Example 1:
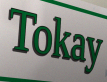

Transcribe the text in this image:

Tokay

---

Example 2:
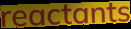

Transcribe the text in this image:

reactants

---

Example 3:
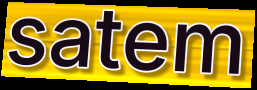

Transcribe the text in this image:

satem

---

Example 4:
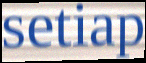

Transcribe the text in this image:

setiap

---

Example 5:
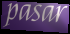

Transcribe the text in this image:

pasar